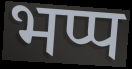
भप्प